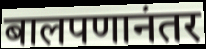
बालपणानंतर